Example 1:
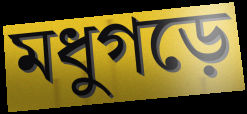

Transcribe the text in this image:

মধুগড়ে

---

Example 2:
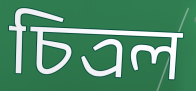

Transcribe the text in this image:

চিত্রল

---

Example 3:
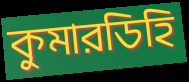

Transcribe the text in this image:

কুমারডিহি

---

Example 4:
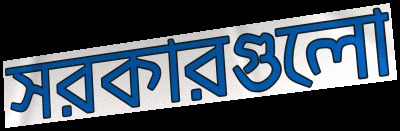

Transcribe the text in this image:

সরকারগুলো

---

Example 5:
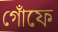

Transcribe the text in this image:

গোঁফে